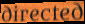
directed